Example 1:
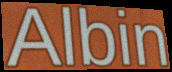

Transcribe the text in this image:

Albin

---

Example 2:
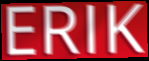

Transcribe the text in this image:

ERIK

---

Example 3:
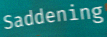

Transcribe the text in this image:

Saddening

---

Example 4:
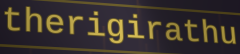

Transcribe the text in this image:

therigirathu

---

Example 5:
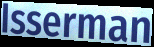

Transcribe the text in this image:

Isserman